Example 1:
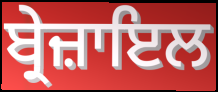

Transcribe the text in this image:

ਬ੍ਰੇਜ਼ਾਇਲ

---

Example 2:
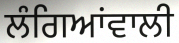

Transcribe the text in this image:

ਲੰਗਿਆਂਵਾਲੀ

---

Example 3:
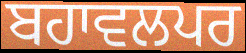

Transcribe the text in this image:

ਬਹਾਵਲਪਰ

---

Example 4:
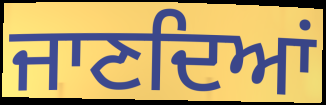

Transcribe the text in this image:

ਜਾਣਦਿਆਂ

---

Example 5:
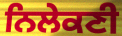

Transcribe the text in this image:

ਨਿਲੇਕਣੀ